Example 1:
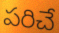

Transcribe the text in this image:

పరిచే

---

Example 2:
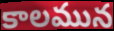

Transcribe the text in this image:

కాలమున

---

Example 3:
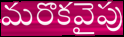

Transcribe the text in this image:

మరొకవైపు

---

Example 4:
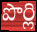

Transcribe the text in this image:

పొర్లి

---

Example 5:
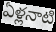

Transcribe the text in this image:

ఏళ్లనాటి